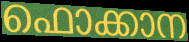
ഫൊക്കാന